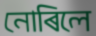
নোৰিলে